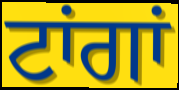
ਟਾਂਗਾਂ